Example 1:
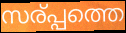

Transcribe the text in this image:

സര്പ്പത്തെ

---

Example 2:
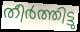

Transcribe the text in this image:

തീർത്തിട്ടു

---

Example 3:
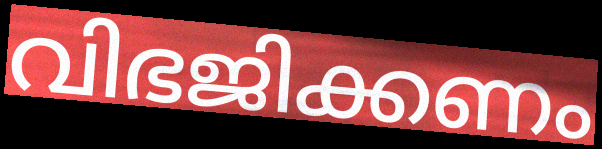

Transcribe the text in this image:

വിഭജിക്കണം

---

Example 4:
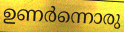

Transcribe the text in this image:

ഉണർന്നൊരു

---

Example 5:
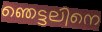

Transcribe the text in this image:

ഞെട്ടലിനെ